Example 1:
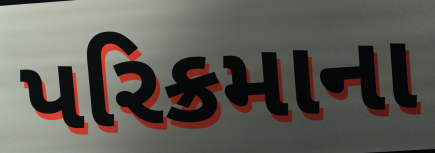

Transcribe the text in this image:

પરિક્રમાના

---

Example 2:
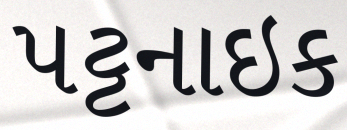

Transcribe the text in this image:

પટ્ટનાઇક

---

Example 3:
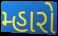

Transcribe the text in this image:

મ્હારો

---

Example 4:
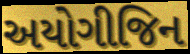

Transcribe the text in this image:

અયોગીજિન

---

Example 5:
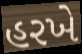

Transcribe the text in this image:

હરખે